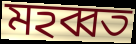
মহব্বত